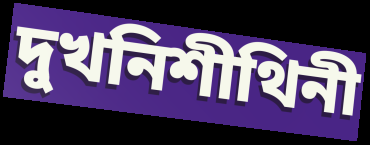
দুখনিশীথিনী